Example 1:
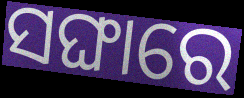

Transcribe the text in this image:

ସଙ୍ଘାରେ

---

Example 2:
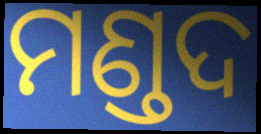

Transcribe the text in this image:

ମଣ୍ଡଦ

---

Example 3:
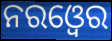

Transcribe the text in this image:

ନରଓ୍ବେର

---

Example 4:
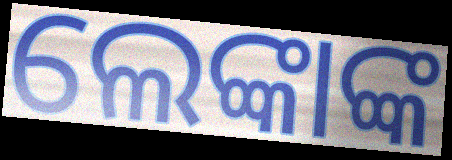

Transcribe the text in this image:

ଲେଙ୍କାଙ୍କ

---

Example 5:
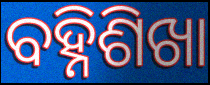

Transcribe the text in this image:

ବହ୍ନିଶିଖା